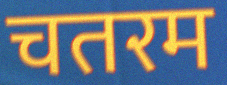
चतरम